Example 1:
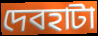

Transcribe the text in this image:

দেবহাটা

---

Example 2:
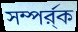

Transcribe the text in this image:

সম্পর্র্ক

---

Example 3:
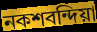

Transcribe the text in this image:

নকশবন্দিয়া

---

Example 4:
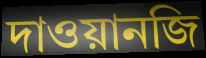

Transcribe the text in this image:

দাওয়ানজি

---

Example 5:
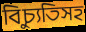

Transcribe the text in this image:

বিচ্যুতিসহ